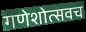
गणेशोत्सवच